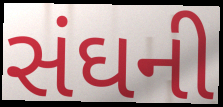
સંઘની